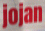
jojan